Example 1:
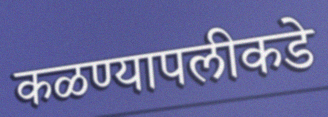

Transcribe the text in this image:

कळण्यापलीकडे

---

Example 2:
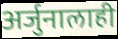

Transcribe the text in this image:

अर्जुनालाही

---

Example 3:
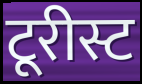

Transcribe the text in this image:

टूरीस्ट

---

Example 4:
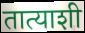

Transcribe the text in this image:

तात्याशी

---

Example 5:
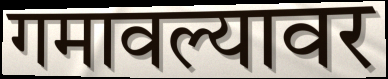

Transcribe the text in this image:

गमावल्यावर